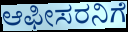
ಆಫೀಸರನಿಗೆ